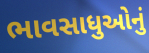
ભાવસાધુઓનું